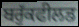
ਬਰੁੱਕਫੀਲਡ